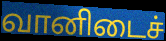
வானிடைச்